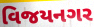
વિજયનગર